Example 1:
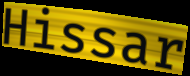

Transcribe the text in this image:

Hissar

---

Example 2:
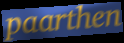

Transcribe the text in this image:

paarthen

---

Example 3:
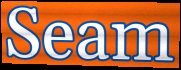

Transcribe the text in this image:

Seam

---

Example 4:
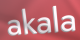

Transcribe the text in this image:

akala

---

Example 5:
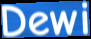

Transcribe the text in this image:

Dewi